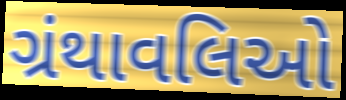
ગ્રંથાવલિઓ